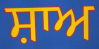
ਸ਼ਾਅ